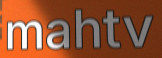
mahtv